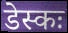
डेस्कः